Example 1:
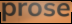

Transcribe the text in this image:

prose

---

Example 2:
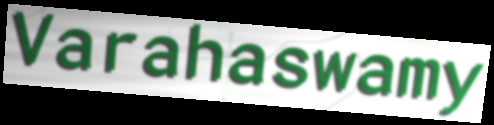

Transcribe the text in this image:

Varahaswamy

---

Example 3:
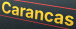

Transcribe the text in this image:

Carancas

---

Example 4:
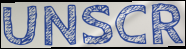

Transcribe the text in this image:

UNSCR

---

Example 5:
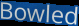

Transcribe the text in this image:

Bowled